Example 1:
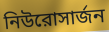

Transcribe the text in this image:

নিউরোসার্জন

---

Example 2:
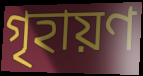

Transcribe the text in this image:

গৃহায়ণ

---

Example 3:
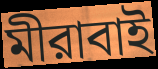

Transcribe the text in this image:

মীরাবাই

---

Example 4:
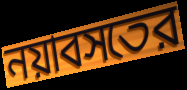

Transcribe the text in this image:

নয়াবসতের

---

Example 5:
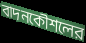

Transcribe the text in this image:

বাদনকৌশলের